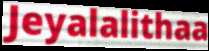
Jeyalalithaa